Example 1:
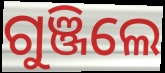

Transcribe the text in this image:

ଗୁଞ୍ଜିଲେ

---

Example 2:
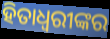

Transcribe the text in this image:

ହିତାଧ୍ଵରୀଙ୍କର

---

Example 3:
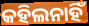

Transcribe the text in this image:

କହିଲନାହିଁ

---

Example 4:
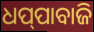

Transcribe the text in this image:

ଧପ୍‌ପାବାଜି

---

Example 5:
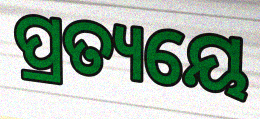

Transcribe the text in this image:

ପ୍ରତ୍ୟୟେ